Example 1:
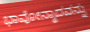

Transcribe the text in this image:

ಭಾವೋನ್ಮಾದವನ್ನು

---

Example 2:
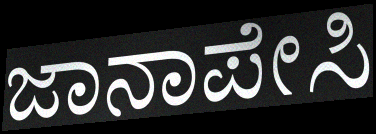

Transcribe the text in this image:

ಜಾನಾಪೇಸಿ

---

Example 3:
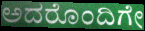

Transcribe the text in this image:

ಅದರೊಂದಿಗೇ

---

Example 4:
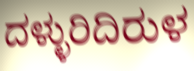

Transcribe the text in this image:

ದಳ್ಳುರಿದಿರುಳ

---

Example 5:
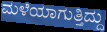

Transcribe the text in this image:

ಮಳೆಯಾಗುತ್ತಿದ್ದು